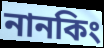
নানকিং